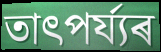
তাৎপৰ্য্যৰ